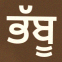
ਭੱਬੂ